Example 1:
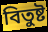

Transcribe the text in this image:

বিতুষ্ট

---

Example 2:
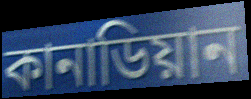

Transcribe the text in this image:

কানাডিয়ান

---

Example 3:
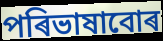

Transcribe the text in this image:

পৰিভাষাবোৰ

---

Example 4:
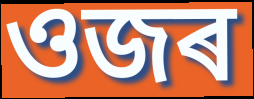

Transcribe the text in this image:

ওজৰ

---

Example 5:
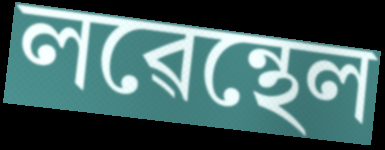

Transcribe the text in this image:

লৱেন্থেল